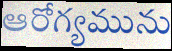
ఆరోగ్యమును